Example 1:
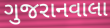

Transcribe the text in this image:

ગુજરાનવાલા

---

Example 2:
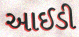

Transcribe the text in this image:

આઈડી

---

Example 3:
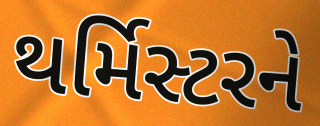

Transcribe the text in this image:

થર્મિસ્ટરને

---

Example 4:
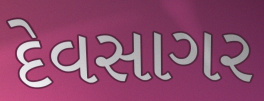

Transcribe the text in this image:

દેવસાગર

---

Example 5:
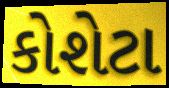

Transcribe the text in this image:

કોશેટા